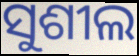
ସୁଶୀଲ